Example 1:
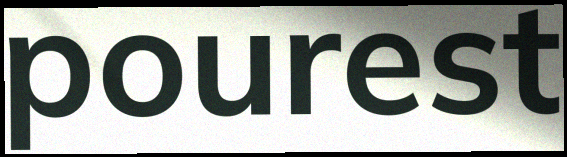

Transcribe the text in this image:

pourest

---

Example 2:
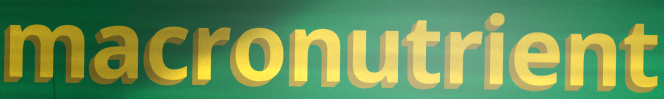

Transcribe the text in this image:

macronutrient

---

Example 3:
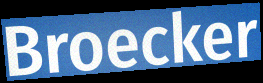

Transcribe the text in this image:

Broecker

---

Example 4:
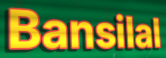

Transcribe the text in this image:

Bansilal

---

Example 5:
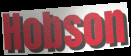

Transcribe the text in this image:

Hobson